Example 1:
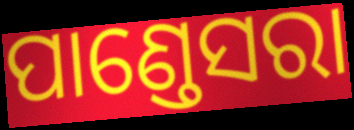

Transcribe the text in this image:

ପାଣ୍ଡେସରା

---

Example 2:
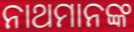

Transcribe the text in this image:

ନାଥମାନଙ୍କ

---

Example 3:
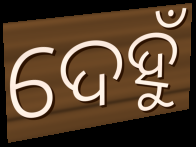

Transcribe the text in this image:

ଦେହୁଁ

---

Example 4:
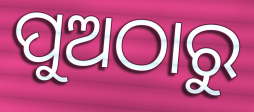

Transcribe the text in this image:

ପୁଅଠାରୁ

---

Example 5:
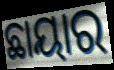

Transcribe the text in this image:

ଛାୟାର